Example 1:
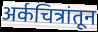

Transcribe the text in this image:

अर्कचित्रांतून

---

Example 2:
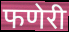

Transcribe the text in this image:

फणेरी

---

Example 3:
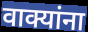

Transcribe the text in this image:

वाक्यांना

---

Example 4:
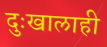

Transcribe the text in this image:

दुःखालाही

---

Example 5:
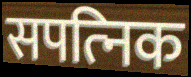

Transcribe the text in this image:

सपत्‍निक